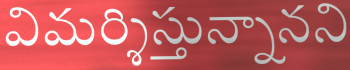
విమర్శిస్తున్నానని